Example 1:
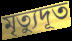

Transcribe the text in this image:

মৃত্যুদূত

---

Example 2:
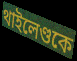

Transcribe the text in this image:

থাইলেণ্ডকে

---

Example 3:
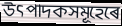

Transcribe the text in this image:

উৎপাদকসমূহেৰে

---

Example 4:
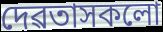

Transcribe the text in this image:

দেৱতাসকলো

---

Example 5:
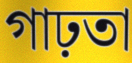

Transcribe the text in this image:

গাঢ়তা